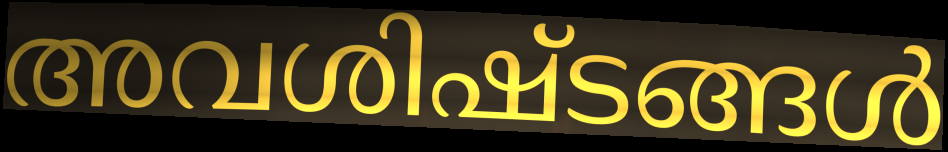
അവശിഷ്ടങ്ങൾ